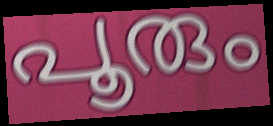
പൂരും